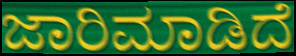
ಜಾರಿಮಾಡಿದೆ